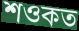
শওকত